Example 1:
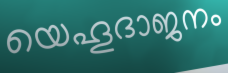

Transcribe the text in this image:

യെഹൂദാജനം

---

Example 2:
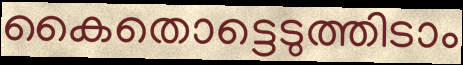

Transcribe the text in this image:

കൈതൊട്ടെടുത്തിടാം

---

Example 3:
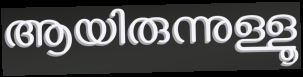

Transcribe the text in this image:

ആയിരുന്നുള്ളൂ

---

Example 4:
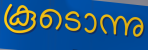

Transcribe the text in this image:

കൂടൊന്നു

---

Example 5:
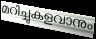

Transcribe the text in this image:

മറിച്ചുകളവാനും